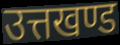
उत्तखण्ड